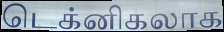
டெக்னிகலாக